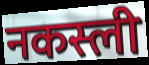
नकस्ली